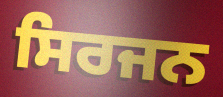
ਸਿਰਜਨ